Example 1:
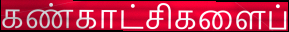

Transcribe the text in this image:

கண்காட்சிகளைப்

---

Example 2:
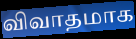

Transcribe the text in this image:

விவாதமாக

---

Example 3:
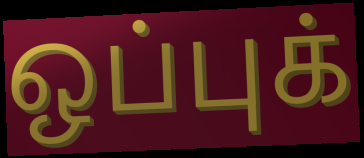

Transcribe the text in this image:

ஒப்புக்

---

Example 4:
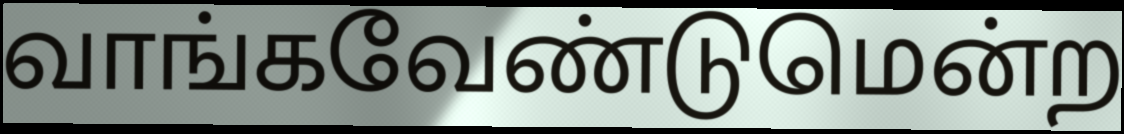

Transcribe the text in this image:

வாங்கவேண்டுமென்ற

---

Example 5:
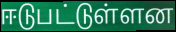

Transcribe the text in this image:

ஈடுபட்டுள்ளன